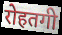
रोहतगी